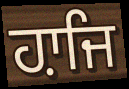
ਹ਼ਾਜਿ